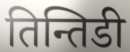
तिन्तिडी